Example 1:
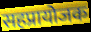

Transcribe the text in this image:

सहप्रायोजक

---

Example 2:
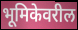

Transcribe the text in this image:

भूमिकेवरील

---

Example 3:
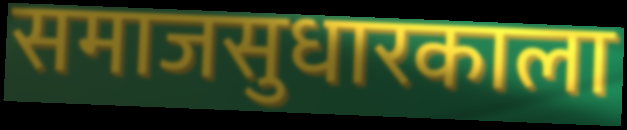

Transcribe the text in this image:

समाजसुधारकाला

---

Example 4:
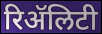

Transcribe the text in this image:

रिॲलिटी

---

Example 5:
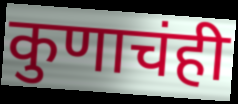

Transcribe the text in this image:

कुणाचंही